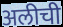
अलीची